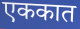
एककात